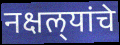
नक्षल्यांचे